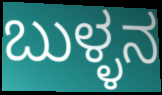
ಬುಳ್ಳನ